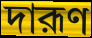
দারূণ